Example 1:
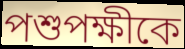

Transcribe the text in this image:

পশুপক্ষীকে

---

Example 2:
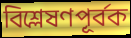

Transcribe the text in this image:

বিশ্লেষণপূর্বক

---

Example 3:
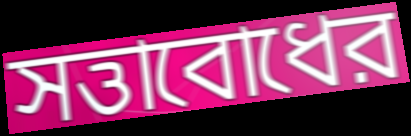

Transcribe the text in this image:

সত্তাবোধের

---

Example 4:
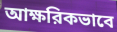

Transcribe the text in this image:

আক্ষরিকভাবে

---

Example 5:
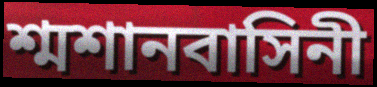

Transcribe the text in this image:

শ্মশানবাসিনী